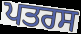
ਪਤਰਸ